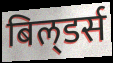
बिल्डर्स